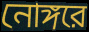
নোঙ্গরে